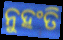
ନୁହଂତି